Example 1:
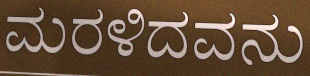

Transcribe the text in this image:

ಮರಳಿದವನು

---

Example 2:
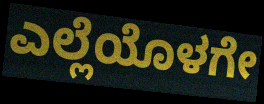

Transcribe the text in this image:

ಎಲ್ಲೆಯೊಳಗೇ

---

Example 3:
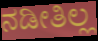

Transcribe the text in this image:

ನಡೀತಿಲ್ಲ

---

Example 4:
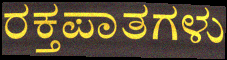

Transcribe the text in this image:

ರಕ್ತಪಾತಗಳು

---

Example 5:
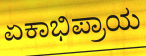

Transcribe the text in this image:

ಏಕಾಭಿಪ್ರಾಯ